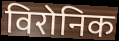
विरोनिक